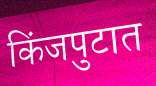
किंजपुटात